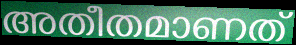
അതീതമാണത്